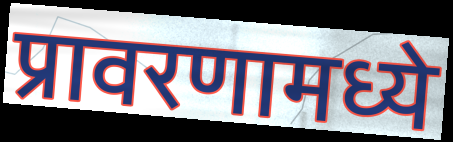
प्रावरणामध्ये